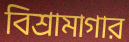
বিশ্রামাগার